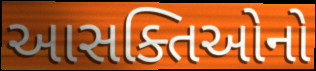
આસક્તિઓનો